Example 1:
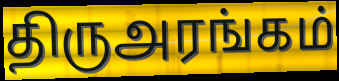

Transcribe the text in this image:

திருஅரங்கம்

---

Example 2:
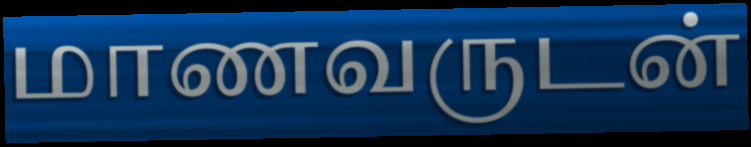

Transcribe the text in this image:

மாணவருடன்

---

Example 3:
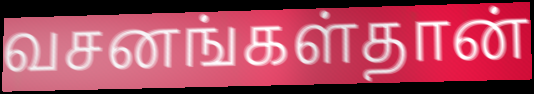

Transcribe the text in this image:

வசனங்கள்தான்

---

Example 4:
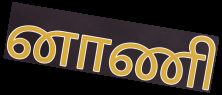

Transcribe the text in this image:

னாணி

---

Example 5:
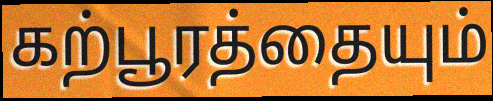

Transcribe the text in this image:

கற்பூரத்தையும்